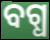
ବଗ୍ଧ